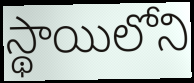
స్థాయిలోని